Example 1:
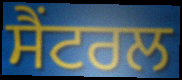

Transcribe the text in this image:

ਸੈਂਟਰਲ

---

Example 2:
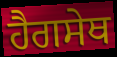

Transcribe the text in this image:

ਹੈਗਸੇਥ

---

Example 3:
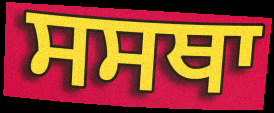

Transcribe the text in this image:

ਸਸਥਾ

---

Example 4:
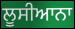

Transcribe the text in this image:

ਲੂਸੀਆਨਾ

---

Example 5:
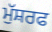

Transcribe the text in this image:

ਮੁੱਸ਼ਰਫ